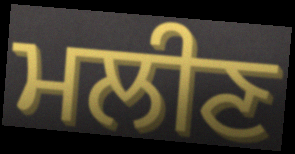
ਮਲੀਣ